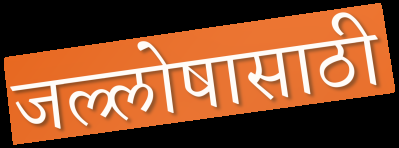
जल्लोषासाठी